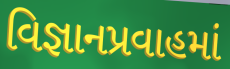
વિજ્ઞાનપ્રવાહમાં